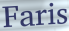
Faris